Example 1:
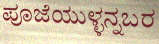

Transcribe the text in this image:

ಪೂಜೆಯುಳ್ಳನ್ನಬರ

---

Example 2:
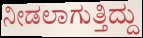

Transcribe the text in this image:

ನೀಡಲಾಗುತ್ತಿದ್ದು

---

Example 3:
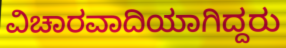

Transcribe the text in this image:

ವಿಚಾರವಾದಿಯಾಗಿದ್ದರು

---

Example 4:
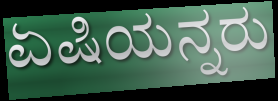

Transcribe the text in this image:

ಏಷಿಯನ್ನರು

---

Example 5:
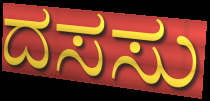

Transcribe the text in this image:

ದಸಸು